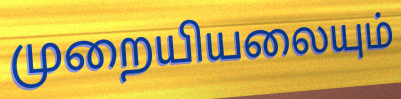
முறையியலையும்